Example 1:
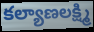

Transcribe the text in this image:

కల్యాణలక్ష్మి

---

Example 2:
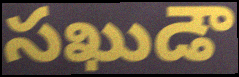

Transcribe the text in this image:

సఖుడౌ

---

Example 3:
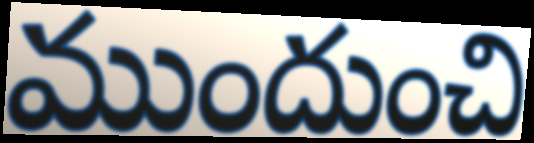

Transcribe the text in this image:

ముందుంచి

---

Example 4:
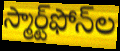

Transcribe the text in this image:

స్మార్ట్‌ఫోన్‌ల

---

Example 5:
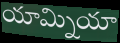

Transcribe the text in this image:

యామ్నియా